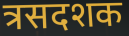
त्रसदशक